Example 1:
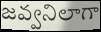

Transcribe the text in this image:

జవ్వనిలాగా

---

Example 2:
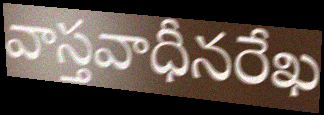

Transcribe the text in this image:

వాస్తవాధీనరేఖ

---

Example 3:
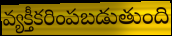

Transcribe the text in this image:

వ్యక్తీకరింపబడుతుంది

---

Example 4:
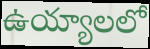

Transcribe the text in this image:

ఉయ్యాలలో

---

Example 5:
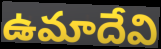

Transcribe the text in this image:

ఉమాదేవి